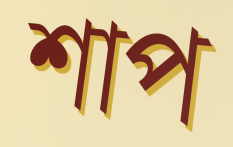
শাপ